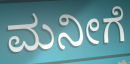
ಮನೀಗೆ